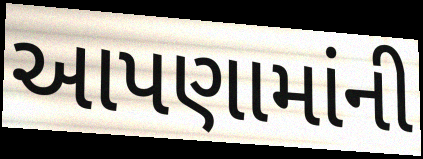
આપણામાંની